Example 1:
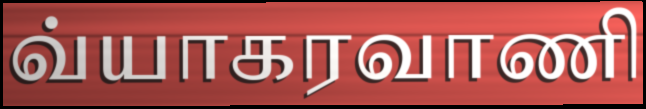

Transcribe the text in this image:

வ்யாகரவாணி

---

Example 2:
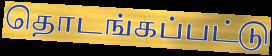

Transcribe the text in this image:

தொடங்கப்பட்டு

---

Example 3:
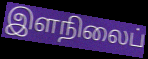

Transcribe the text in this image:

இளநிலைப்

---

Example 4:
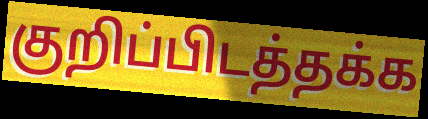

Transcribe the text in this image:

குறிப்பிடத்தக்க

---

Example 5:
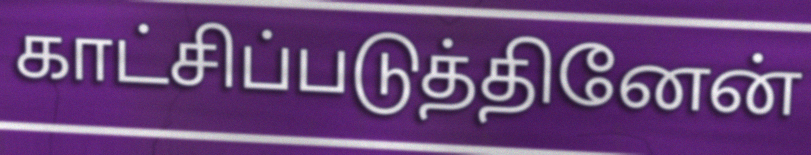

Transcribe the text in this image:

காட்சிப்படுத்தினேன்